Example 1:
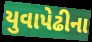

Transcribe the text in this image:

યુવાપેઢીના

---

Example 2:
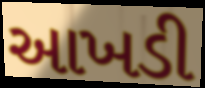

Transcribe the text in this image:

આખડી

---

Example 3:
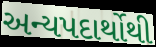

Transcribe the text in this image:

અન્યપદાર્થોથી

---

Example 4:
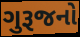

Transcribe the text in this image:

ગુરૂજનો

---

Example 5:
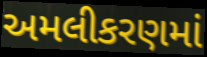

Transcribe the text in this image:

અમલીકરણમાં